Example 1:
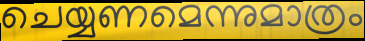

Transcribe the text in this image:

ചെയ്യണമെന്നുമാത്രം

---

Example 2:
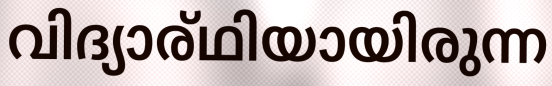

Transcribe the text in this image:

വിദ്യാര്ഥിയായിരുന്ന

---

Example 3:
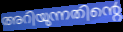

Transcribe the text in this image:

അറിയുന്നതിന്റെ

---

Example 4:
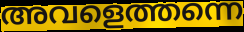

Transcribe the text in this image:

അവളെത്തന്നെ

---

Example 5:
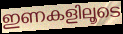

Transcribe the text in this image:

ഇണകളിലൂടെ